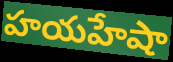
హయహేషా